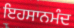
ਇਹਸਾਨਮੰਦ